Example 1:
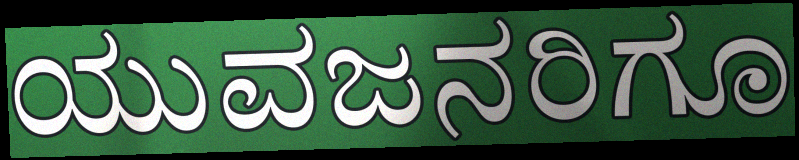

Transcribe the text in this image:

ಯುವಜನರಿಗೂ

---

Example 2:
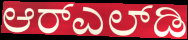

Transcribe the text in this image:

ಆರ್‌ಎಲ್‌ಡಿ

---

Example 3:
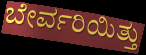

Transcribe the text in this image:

ಬೇರ್ವರಿಯಿತ್ತು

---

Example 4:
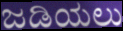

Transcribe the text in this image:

ಜಡಿಯಲು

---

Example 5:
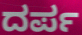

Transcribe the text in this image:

ದರ್ಪ